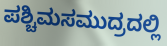
ಪಶ್ಚಿಮಸಮುದ್ರದಲ್ಲಿ